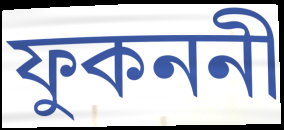
ফুকননী